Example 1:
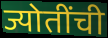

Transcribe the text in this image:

ज्योतींची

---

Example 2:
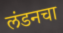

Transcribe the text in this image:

लंडनचा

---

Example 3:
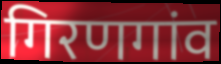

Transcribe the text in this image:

गिरणगांव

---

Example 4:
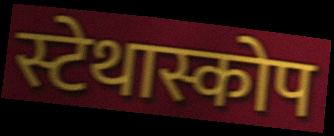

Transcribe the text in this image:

स्टेथास्कोप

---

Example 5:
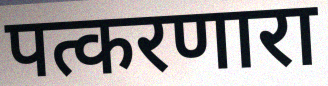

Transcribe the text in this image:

पत्करणारा